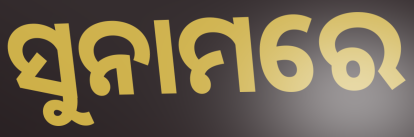
ସୁନାମରେ